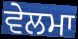
ਵੇਲਮਾ